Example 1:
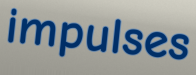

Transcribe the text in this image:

impulses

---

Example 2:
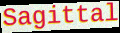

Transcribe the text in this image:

Sagittal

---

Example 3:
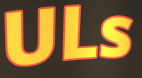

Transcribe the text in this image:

ULs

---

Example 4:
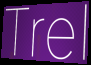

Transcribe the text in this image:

Trel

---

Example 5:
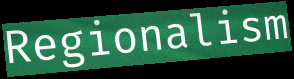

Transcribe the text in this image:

Regionalism